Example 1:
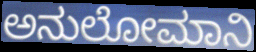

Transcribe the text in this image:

ಅನುಲೋಮಾನಿ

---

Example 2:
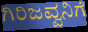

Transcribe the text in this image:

ಗಿರಿಜವ್ವನಿಗೆ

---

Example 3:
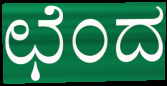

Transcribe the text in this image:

ಛೆಂದ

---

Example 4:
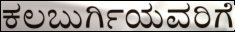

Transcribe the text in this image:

ಕಲಬುರ್ಗಿಯವರಿಗೆ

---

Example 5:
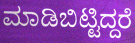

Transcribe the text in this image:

ಮಾಡಿಬಿಟ್ಟಿದ್ದರೆ